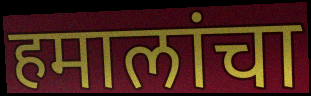
हमालांचा